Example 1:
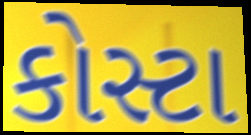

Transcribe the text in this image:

કોસ્ટા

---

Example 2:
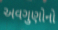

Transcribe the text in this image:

અવગુણોનો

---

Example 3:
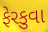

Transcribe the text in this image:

ફેરકુવા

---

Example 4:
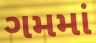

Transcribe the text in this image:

ગમમાં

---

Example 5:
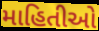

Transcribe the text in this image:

માહિતીઓ